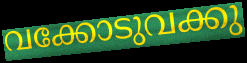
വക്കോടുവക്കു